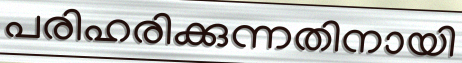
പരിഹരിക്കുന്നതിനായി